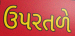
ઉપરતળે